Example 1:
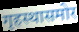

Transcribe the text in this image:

गृहस्थासमोर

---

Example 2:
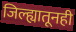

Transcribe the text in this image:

जिल्ह्यातूनही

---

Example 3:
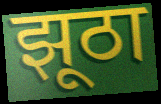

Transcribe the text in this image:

झूठा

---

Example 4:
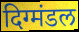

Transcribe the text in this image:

दिग्मंडल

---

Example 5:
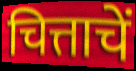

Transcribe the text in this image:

चित्ताचें